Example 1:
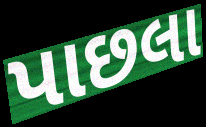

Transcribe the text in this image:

પાછલા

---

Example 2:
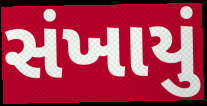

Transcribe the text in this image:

સંખાયું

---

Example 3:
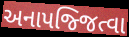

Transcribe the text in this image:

અનાપજ્જિત્વા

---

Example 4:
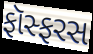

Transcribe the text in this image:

ફૉસ્ફરસ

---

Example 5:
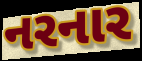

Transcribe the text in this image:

નરનાર